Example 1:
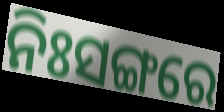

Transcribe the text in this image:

ନିଃସଙ୍ଗରେ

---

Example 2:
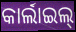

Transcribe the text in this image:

କାର୍ଲାଇଲ୍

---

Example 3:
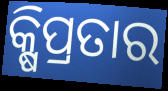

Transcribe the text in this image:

କ୍ଷିପ୍ରତାର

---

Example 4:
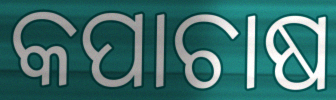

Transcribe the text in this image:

କପାଚାଷ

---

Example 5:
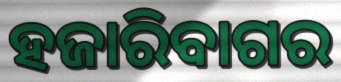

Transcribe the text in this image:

ହଜାରିବାଗର